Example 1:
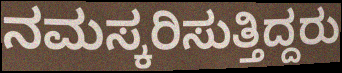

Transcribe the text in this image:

ನಮಸ್ಕರಿಸುತ್ತಿದ್ದರು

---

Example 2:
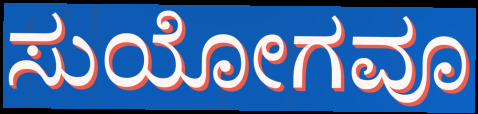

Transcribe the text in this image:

ಸುಯೋಗವೂ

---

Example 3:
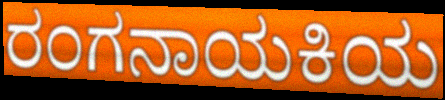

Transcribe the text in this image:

ರಂಗನಾಯಕಿಯ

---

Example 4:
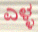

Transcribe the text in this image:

ಎಳ್ಳ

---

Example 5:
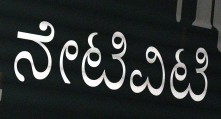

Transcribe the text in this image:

ನೇಟಿವಿಟಿ